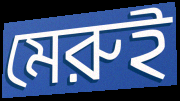
মেরুই